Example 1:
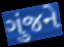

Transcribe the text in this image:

ગુંજને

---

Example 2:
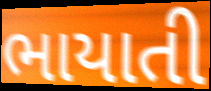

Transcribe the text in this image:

ભાયાતી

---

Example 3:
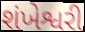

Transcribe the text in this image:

શંખેશ્વરી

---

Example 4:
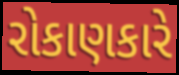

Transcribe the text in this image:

રોકાણકારે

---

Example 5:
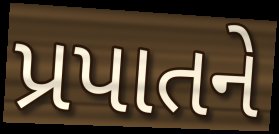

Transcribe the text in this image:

પ્રપાતને